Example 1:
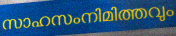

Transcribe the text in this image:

സാഹസംനിമിത്തവും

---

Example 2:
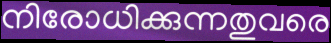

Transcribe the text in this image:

നിരോധിക്കുന്നതുവരെ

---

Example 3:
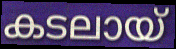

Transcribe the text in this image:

കടലായ്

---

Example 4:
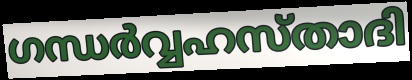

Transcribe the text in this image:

ഗന്ധർവ്വഹസ്താദി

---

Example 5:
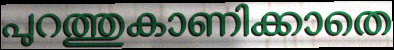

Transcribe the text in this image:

പുറത്തുകാണിക്കാതെ